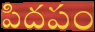
పిదపం